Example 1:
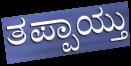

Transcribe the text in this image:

ತಪ್ಪಾಯ್ತು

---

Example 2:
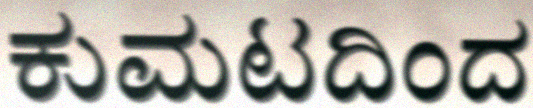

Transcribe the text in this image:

ಕುಮಟದಿಂದ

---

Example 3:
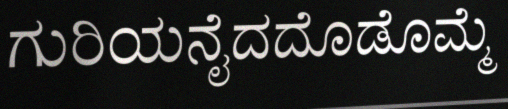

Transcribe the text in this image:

ಗುರಿಯನೈದದೊಡೊಮ್ಮೆ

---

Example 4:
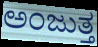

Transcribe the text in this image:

ಅಂಜುತ್ತ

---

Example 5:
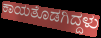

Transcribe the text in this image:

ಕಾಯತೊಡಗಿದ್ದಳು